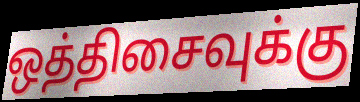
ஒத்திசைவுக்கு